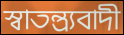
স্বাতন্ত্র্যবাদী